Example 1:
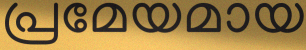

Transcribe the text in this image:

പ്രമേയമായ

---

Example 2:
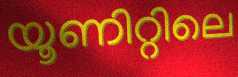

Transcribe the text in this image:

യൂണിറ്റിലെ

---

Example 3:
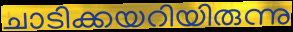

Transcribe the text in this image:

ചാടിക്കയറിയിരുന്നു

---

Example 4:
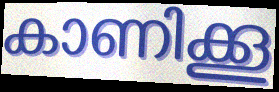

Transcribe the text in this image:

കാണിക്കൂ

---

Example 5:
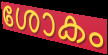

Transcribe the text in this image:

ശോകം